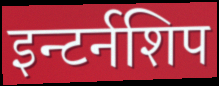
इन्टर्नशिप